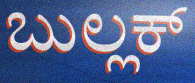
ಬುಲ್ಲಕ್